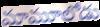
మామూలోడు